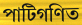
পাটিগণিত